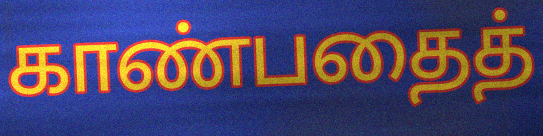
காண்பதைத்